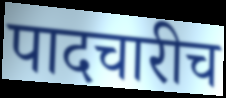
पादचारीच